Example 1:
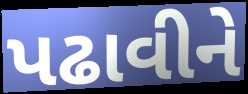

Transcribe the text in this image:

પઢાવીને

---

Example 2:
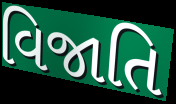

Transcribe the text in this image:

વિજાતિ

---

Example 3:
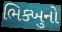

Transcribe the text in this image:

ભિક્ખુનો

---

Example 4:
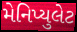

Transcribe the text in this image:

મેનિપ્યુલેટ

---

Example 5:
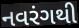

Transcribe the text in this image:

નવરંગથી